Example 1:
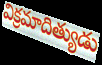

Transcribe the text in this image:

విక్రమాదిత్యుడు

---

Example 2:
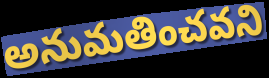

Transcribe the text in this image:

అనుమతించవని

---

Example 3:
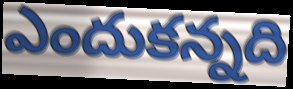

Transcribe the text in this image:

ఎందుకన్నది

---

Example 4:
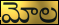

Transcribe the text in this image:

మోల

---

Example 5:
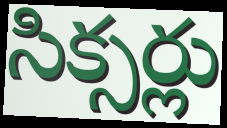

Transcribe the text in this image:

సిక్సర్లు